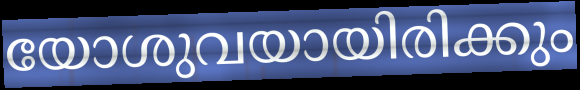
യോശുവയായിരിക്കും